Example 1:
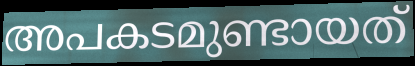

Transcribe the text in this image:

അപകടമുണ്ടായത്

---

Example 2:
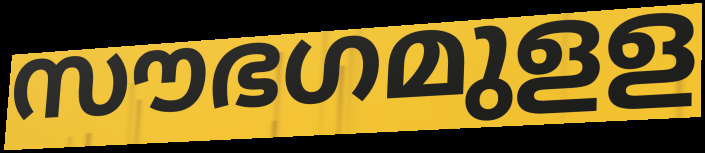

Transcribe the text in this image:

സൗഭഗമുളള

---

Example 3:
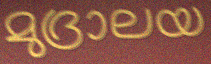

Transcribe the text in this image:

മുദ്രാലയ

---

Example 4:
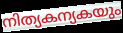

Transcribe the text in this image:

നിത്യകന്യകയും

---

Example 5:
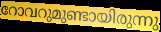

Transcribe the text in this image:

റോവറുമുണ്ടായിരുന്നു